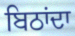
ਬਿਠਾਂਦਾ